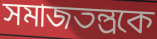
সমাজতন্ত্রকে